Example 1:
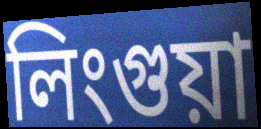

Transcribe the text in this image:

লিংগুয়া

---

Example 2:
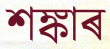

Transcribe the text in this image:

শঙ্কাৰ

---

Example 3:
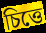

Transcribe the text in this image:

চিত্তে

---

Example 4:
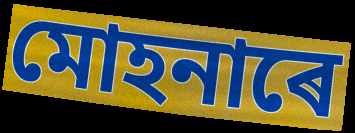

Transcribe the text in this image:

মোহনাৰে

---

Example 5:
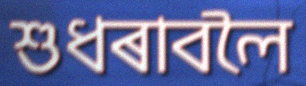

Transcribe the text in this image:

শুধৰাবলৈ